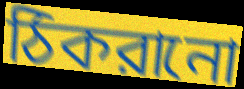
ঠিকরানো